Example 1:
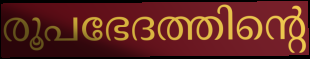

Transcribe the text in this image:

രൂപഭേദത്തിന്റെ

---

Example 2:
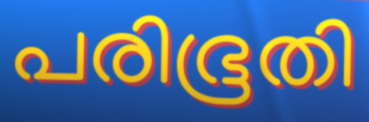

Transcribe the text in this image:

പരിഭൂതി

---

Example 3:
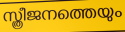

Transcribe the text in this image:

സ്ത്രീജനത്തെയും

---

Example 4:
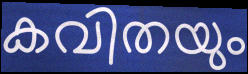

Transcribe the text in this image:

കവിതയും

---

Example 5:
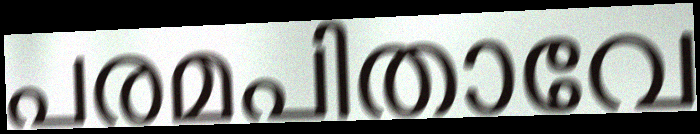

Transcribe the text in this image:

പരമപിതാവേ